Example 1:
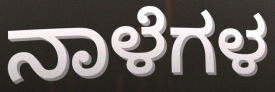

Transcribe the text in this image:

ನಾಳೆಗಳ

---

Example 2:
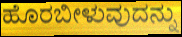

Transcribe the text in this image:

ಹೊರಬೀಳುವುದನ್ನು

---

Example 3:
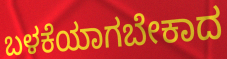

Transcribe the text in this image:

ಬಳಕೆಯಾಗಬೇಕಾದ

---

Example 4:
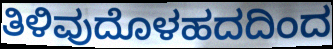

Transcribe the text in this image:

ತಿಳಿವುದೊಳಹದದಿಂದ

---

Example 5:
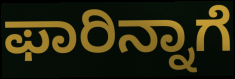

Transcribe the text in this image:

ಫಾರಿನ್ನಾಗೆ